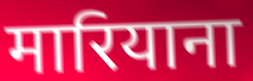
मारियाना